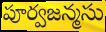
పూర్వజన్మసు